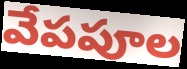
వేపపూల